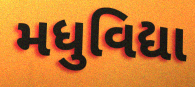
મધુવિદ્યા